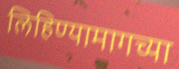
लिहिण्यामागच्या